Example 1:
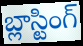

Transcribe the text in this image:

బ్లాస్టింగ్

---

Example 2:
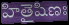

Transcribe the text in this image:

హితైషిణః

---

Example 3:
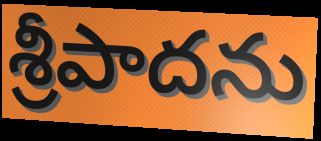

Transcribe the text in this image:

శ్రీపాదను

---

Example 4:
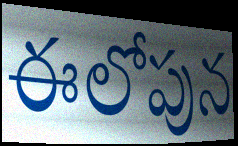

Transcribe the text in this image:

ఈలోపున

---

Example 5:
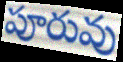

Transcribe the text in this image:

పూరువు